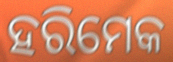
ହରିମେକ